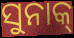
ସୁନାକ୍